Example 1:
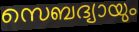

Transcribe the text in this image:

സെബദ്യായും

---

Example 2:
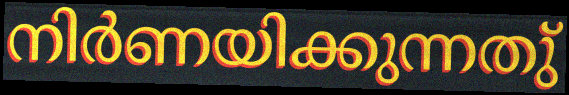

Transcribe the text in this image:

നിർണയിക്കുന്നതു്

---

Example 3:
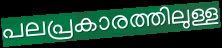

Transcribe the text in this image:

പലപ്രകാരത്തിലുള്ള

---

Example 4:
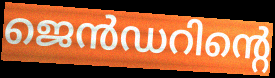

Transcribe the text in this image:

ജെൻഡറിന്റെ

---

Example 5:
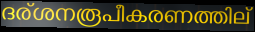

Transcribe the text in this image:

ദര്ശനരൂപീകരണത്തില്